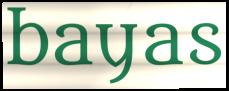
bayas